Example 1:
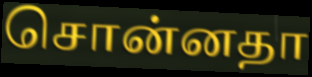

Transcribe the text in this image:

சொன்னதா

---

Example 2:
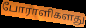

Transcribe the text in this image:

போராளிகளது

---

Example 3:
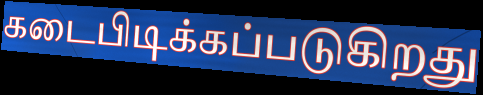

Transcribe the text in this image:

கடைபிடிக்கப்படுகிறது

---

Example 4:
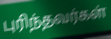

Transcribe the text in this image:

புரிந்தவர்கள்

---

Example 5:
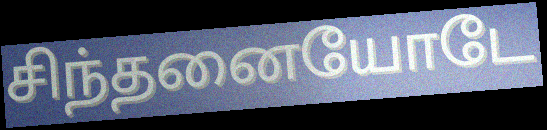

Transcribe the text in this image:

சிந்தனையோடே